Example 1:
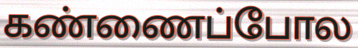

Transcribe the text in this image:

கண்ணைப்போல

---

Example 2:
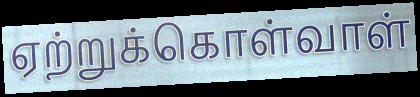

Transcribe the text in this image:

ஏற்றுக்கொள்வாள்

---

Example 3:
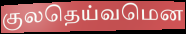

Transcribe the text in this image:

குலதெய்வமென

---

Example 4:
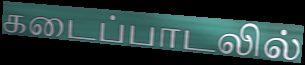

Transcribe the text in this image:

கடைப்பாடலில்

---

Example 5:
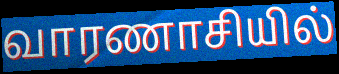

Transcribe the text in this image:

வாரணாசியில்